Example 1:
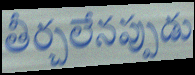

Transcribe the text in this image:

తీర్చలేనప్పుడు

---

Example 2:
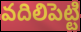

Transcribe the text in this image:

వదిలిపెట్టి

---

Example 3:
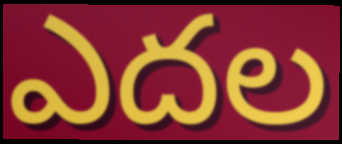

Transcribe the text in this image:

ఎదల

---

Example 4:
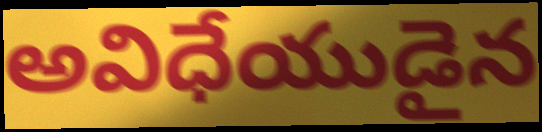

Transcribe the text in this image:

అవిధేయుడైన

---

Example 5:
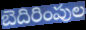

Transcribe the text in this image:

బెదిరింపుల